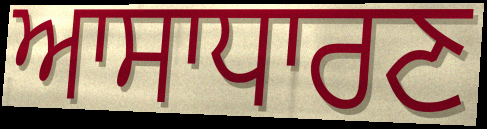
ਆਸਾਧਾਰਣ